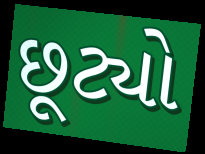
છૂટ્યો